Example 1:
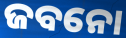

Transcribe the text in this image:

ଜବନୋ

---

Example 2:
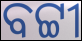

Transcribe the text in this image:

ବଟ୍ଟୀ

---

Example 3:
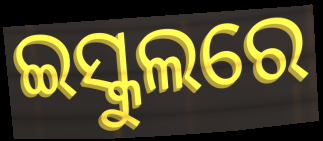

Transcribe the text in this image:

ଇସ୍କୁଲରେ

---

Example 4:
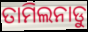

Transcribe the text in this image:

ତାମିଲନାଡୁ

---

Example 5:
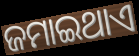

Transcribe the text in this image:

ଜମାଇଥାଏ